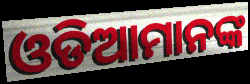
ଓଡିଆମାନଙ୍କ